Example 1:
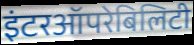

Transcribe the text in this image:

इंटरऑपरेबिलिटी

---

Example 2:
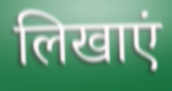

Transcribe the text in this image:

लिखाएं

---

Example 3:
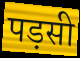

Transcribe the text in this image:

पड़सी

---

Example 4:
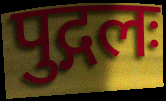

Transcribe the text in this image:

पुद्गलः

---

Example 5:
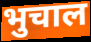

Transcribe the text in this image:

भुचाल